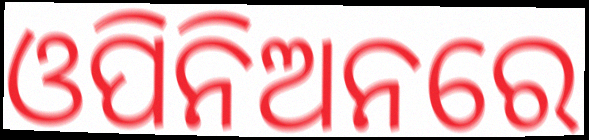
ଓପିନିଅନରେ